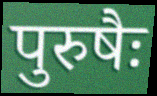
पुरुषैः